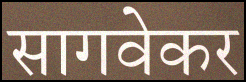
सागवेकर